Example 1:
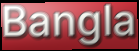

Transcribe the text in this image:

Bangla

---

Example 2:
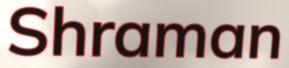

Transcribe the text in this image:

Shraman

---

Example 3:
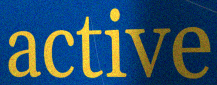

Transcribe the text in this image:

active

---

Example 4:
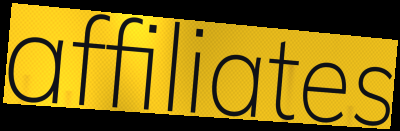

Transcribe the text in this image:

affiliates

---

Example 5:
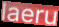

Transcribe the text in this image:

laeru